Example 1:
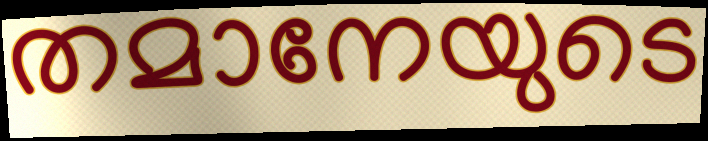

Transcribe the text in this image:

തമാനേയുടെ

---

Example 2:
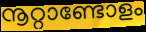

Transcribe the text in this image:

നൂറ്റാണ്ടോളം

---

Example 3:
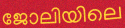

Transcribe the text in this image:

ജോലിയിലെ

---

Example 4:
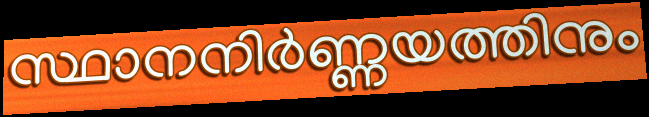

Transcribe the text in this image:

സ്ഥാനനിർണ്ണയത്തിനും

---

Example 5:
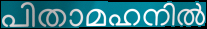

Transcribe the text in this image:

പിതാമഹനിൽ